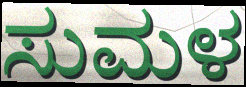
ಸುಮಳ